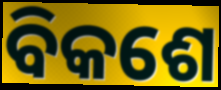
ବିକଶେ